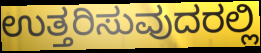
ಉತ್ತರಿಸುವುದರಲ್ಲಿ